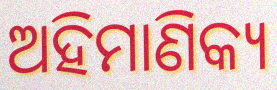
ଅହିମାଣିକ୍ୟ